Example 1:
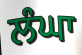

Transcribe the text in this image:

ਲੰਘਾ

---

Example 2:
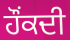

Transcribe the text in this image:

ਹੌਂਕਦੀ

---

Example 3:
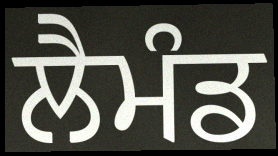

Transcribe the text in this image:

ਲੈਮੰਡ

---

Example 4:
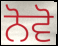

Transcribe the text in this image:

ਨੋਵੋ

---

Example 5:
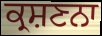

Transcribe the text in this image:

ਕ੍ਰਸ਼ਣਨਾ